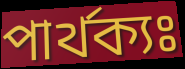
পার্থক্যঃ